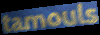
tamouls